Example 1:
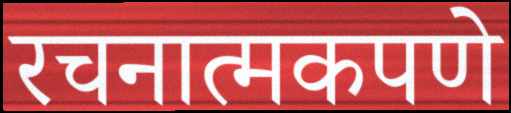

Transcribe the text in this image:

रचनात्मकपणे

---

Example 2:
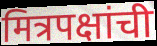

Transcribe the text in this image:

मित्रपक्षांची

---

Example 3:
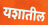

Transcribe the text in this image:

यशातील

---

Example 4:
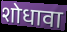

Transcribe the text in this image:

शोधावा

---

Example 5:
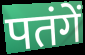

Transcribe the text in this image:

पतंगें